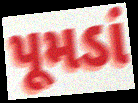
પૂમડાં